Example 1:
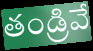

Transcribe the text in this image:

తండ్రివే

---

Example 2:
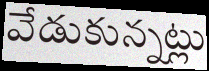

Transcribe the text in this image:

వేడుకున్నట్లు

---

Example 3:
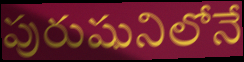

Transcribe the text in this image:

పురుషునిలోనే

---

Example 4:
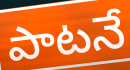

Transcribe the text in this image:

పాటనే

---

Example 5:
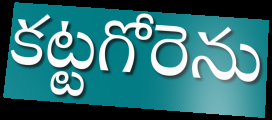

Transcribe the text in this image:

కట్టగోరెను